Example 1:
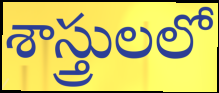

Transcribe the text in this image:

శాస్త్రులలో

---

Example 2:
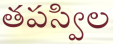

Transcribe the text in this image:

తపస్విల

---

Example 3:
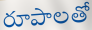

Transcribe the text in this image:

రూపాలతో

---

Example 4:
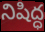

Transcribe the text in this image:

నిషిద్ధ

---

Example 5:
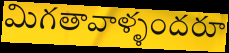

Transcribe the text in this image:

మిగతావాళ్ళందరూ